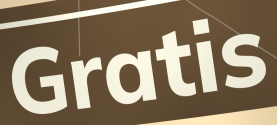
Gratis